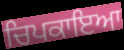
ਚਿਪਕਾਇਆ